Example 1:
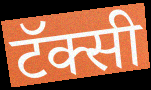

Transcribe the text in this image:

टॅक्सी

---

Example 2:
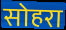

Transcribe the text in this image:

सोहरा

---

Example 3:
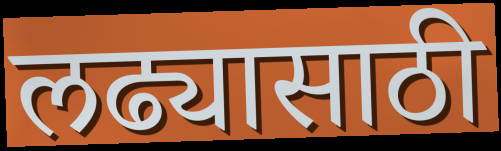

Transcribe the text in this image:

लढ्यासाठी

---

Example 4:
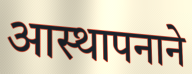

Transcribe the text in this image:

आस्थापनाने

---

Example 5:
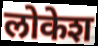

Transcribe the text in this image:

लोकेश